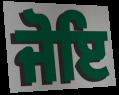
ਜੋਇ